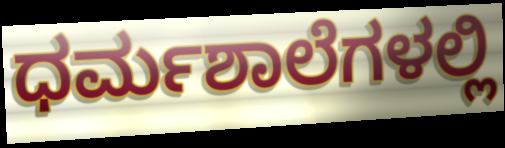
ಧರ್ಮಶಾಲೆಗಳಲ್ಲಿ